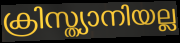
ക്രിസ്ത്യാനിയല്ല